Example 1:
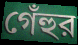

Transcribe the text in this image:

গেঁহুর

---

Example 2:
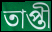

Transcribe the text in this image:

তাপ্তী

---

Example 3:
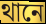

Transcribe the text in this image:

থানে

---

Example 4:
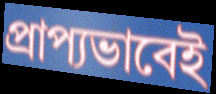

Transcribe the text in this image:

প্রাপ্যভাবেই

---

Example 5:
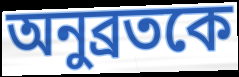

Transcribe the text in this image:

অনুব্রতকে